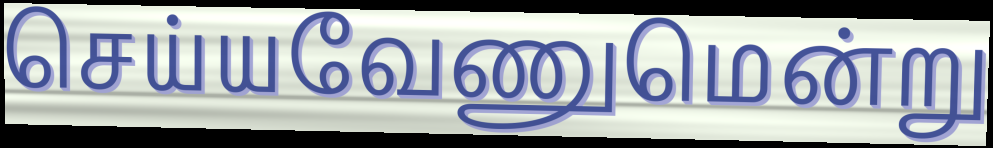
செய்யவேணுமென்று